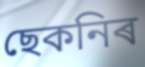
ছেকনিৰ